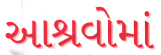
આશ્રવોમાં